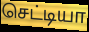
செட்டியா